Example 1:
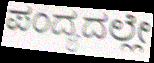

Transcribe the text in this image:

ಪಂದ್ಯದಲ್ಲೇ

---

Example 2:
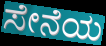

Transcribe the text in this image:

ಸೇನೆಯ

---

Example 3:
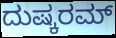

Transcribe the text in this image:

ದುಷ್ಕರಮ್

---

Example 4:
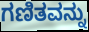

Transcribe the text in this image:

ಗಣಿತವನ್ನು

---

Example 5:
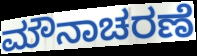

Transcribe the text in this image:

ಮೌನಾಚರಣೆ